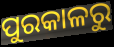
ପୁରକାଳରୁ